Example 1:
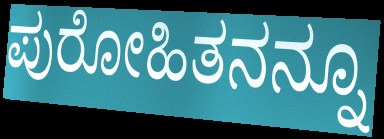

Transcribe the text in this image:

ಪುರೋಹಿತನನ್ನೂ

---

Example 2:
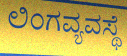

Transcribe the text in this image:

ಲಿಂಗವ್ಯವಸ್ಥೆ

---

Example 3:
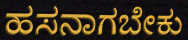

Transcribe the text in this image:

ಹಸನಾಗಬೇಕು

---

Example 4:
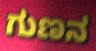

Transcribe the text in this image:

ಗುಣನ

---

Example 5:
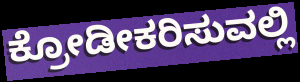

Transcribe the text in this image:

ಕ್ರೋಡೀಕರಿಸುವಲ್ಲಿ